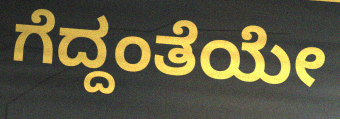
ಗೆದ್ದಂತೆಯೇ